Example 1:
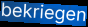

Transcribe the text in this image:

bekriegen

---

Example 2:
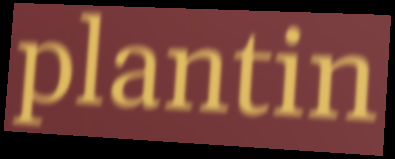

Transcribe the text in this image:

plantin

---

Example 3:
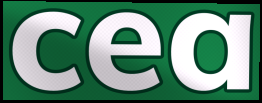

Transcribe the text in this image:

cea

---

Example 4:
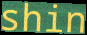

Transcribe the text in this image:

shin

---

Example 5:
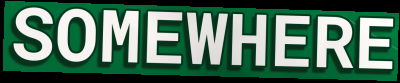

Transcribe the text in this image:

SOMEWHERE